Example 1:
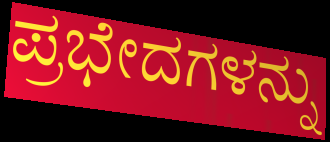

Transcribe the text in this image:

ಪ್ರಭೇದಗಳನ್ನು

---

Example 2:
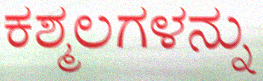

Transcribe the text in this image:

ಕಶ್ಮಲಗಳನ್ನು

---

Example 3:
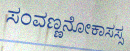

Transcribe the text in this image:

ಸಂವಣ್ಣನೋಕಾಸಸ್ಸ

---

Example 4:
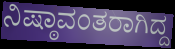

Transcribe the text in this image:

ನಿಷ್ಠಾವಂತರಾಗಿದ್ದ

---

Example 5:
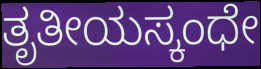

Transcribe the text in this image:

ತೃತೀಯಸ್ಕಂಧೇ